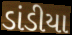
ડાંડીયા